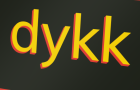
dykk